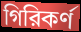
গিরিকর্ণ